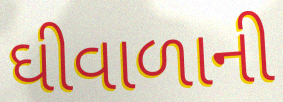
ઘીવાળાની